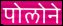
पोलोने